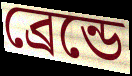
ব্রেন্ডে